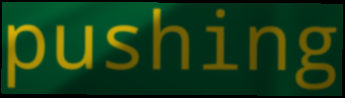
pushing